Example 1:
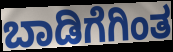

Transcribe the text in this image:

ಬಾಡಿಗೆಗಿಂತ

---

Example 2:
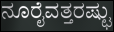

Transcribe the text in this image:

ನೂರೈವತ್ತರಷ್ಟು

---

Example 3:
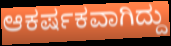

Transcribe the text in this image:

ಆಕರ್ಷಕವಾಗಿದ್ದು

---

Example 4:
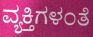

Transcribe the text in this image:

ವ್ಯಕ್ತಿಗಳಂತೆ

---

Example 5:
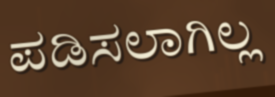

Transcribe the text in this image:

ಪಡಿಸಲಾಗಿಲ್ಲ